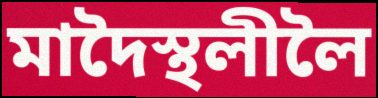
মাদৈস্থলীলৈ